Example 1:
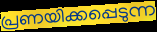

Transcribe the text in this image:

പ്രണയിക്കപ്പെടുന്ന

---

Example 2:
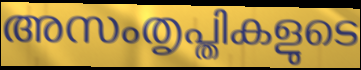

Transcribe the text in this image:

അസംതൃപ്തികളുടെ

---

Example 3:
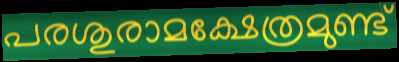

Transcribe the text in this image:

പരശുരാമക്ഷേത്രമുണ്ട്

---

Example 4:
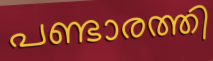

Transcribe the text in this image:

പണ്ടാരത്തി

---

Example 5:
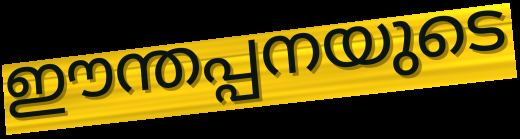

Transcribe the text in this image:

ഈന്തപ്പനയുടെ